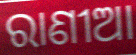
ରାଣୀଆ